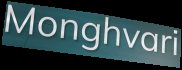
Monghvari